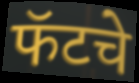
फॅटचे